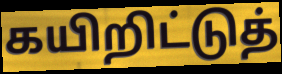
கயிறிட்டுத்